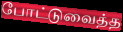
போட்டுவைத்த